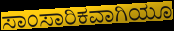
ಸಾಂಸಾರಿಕವಾಗಿಯೂ